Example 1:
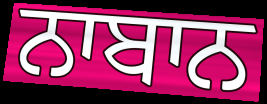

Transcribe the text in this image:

ਨਾਬਾਨ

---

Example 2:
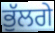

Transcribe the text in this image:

ਭੁੱਲਗੇ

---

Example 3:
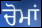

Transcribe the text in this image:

ਚੋਮਾਂ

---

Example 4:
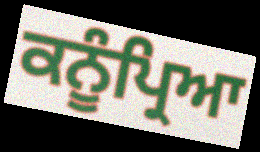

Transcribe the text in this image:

ਕਨੂੰਪ੍ਰਿਆ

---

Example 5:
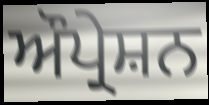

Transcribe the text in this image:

ਔਪ੍ਰੇਸ਼ਨ